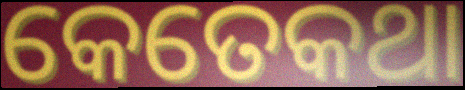
କେତେକଥା